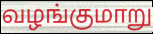
வழங்குமாறு